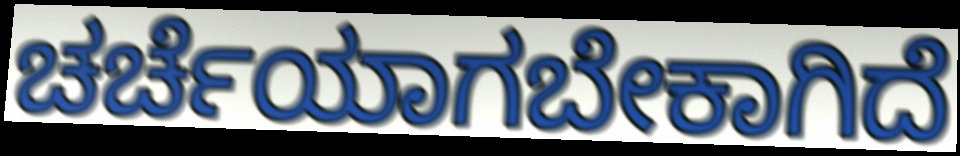
ಚರ್ಚೆಯಾಗಬೇಕಾಗಿದೆ